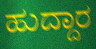
ಹುದ್ದಾರ